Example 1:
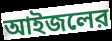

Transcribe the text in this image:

আইজলের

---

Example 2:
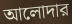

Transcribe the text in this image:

আলোদার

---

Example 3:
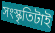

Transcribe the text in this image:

সংস্কৃতিটাই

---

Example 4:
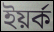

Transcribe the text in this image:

ইয়র্ক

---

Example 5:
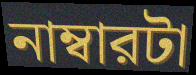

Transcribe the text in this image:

নাম্বারটা